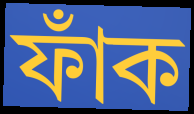
ফাঁক